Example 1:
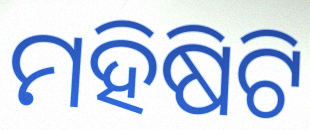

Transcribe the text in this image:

ମହିଷିଟି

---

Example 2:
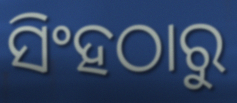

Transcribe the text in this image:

ସିଂହଠାରୁ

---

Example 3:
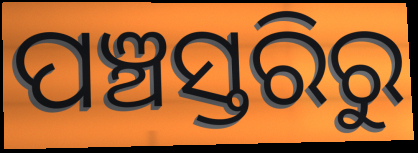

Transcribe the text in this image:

ପଞ୍ଚସ୍ତରିରୁ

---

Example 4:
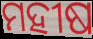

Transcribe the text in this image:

ମହୀଷ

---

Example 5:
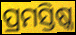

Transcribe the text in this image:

ପ୍ରମସ୍ତିଷ୍କ